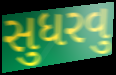
સુધરવુ